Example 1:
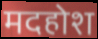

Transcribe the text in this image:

मदहोश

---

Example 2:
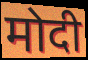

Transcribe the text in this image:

मोदी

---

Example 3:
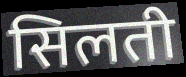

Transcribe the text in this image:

सिलती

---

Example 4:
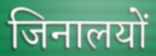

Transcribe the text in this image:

जिनालयों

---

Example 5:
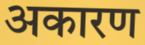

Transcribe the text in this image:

अकारण